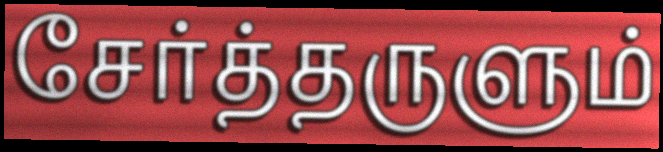
சேர்த்தருளும்